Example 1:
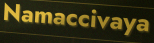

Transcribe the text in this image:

Namaccivaya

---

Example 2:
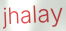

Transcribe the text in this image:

jhalay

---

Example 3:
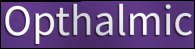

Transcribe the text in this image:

Opthalmic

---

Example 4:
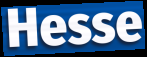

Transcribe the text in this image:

Hesse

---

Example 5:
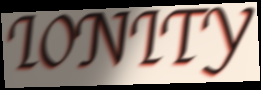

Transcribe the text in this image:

IONITY